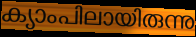
ക്യാംപിലായിരുന്നു